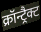
क्रॉन्ट्रैक्ट